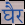
घैर